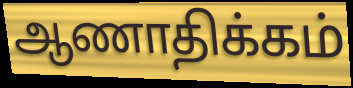
ஆணாதிக்கம்